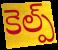
కెల్ప్